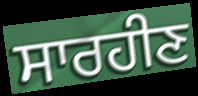
ਸਾਰਹੀਣ